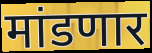
मांडणार